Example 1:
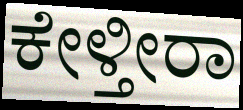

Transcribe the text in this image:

ಕೇಳ್ತೀರಾ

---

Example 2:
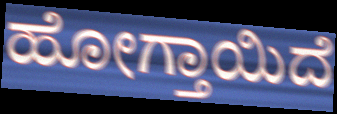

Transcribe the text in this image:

ಹೋಗ್ತಾಯಿದೆ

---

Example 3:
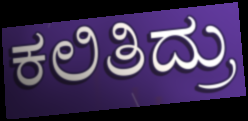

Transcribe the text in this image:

ಕಲಿತಿದ್ರು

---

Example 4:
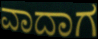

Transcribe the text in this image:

ವಾದಾಗ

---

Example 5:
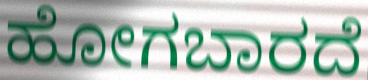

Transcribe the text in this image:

ಹೋಗಬಾರದೆ